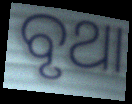
ବୃଥା